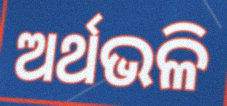
ଅର୍ଥଭଳି